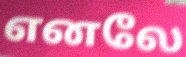
எனலே